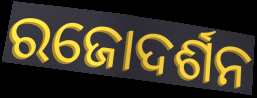
ରଜୋଦର୍ଶନ